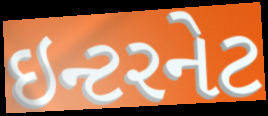
ઇન્ટરનેટ